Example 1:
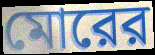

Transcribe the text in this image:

মোরের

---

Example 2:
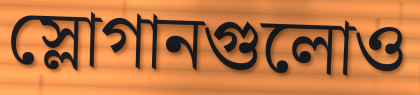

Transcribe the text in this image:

স্লোগানগুলোও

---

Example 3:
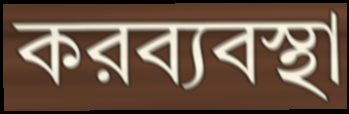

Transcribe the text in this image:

করব্যবস্থা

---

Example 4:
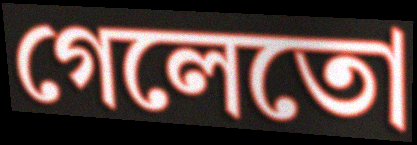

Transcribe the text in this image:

গেলেতো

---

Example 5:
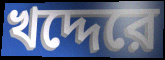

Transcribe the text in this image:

খদ্দেরে